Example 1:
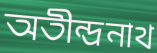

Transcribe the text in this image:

অতীন্দ্রনাথ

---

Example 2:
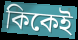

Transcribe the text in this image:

কিকেই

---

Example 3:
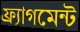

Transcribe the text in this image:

ফ্র্যাগমেন্ট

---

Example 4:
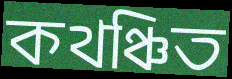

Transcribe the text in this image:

কথঞ্চিত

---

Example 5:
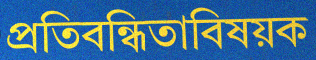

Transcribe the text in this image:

প্রতিবন্ধিতাবিষয়ক